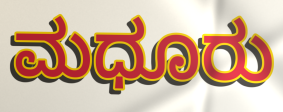
ಮಧೂರು